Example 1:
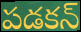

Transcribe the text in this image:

పడకన్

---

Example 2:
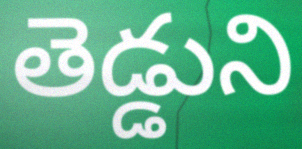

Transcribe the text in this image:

తెడ్డుని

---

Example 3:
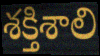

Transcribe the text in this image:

శక్తిశాలి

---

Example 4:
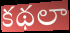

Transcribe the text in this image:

కథలా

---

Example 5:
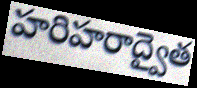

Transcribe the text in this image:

హరిహరాద్వైత